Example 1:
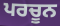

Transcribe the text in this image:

ਪਰਚੂਨ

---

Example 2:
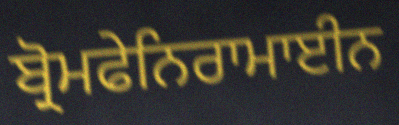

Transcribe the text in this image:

ਬ੍ਰੋਮਫੇਨਿਰਾਮਾਈਨ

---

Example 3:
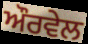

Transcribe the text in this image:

ਔਰਵੇਲ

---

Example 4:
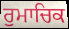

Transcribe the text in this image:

ਰੁਮਾਚਿਕ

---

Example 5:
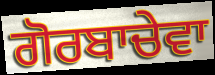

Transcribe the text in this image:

ਗੋਰਬਾਚੇਵਾ